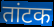
तांटक